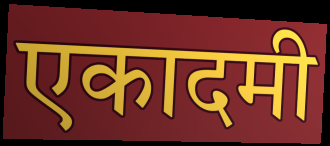
एकादमी